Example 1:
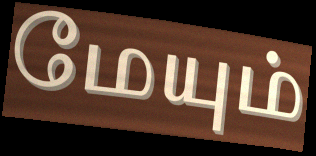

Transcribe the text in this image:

மேயும்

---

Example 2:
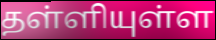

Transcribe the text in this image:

தள்ளியுள்ள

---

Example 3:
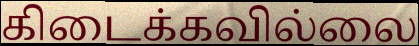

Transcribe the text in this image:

கிடைக்கவில்லை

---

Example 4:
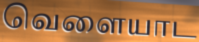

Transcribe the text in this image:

வெளையாட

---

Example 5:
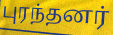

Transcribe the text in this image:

புரந்தனர்